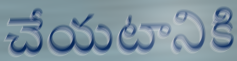
చేయటానికి